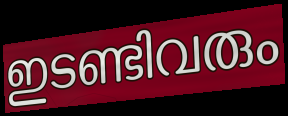
ഇടണ്ടിവരും